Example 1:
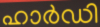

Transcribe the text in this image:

ഹാർഡി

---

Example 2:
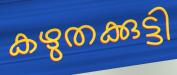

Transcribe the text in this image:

കഴുതക്കുട്ടി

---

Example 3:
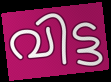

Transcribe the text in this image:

വിട്ട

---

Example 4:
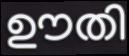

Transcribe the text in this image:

ഊതി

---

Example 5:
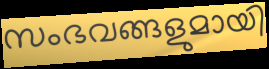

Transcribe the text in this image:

സംഭവങ്ങളുമായി